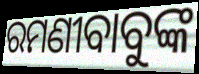
ରମଣୀବାବୁଙ୍କ